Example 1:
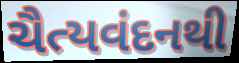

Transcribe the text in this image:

ચૈત્યવંદનથી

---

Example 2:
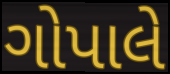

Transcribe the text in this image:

ગોપાલે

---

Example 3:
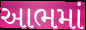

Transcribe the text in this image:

આભમાં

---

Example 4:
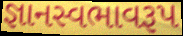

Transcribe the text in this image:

જ્ઞાનસ્વભાવરૂપ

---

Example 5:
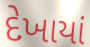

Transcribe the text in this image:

દેખાયાં